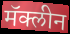
मॅक्लीन